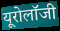
यूरोलॉजी